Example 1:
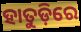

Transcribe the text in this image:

ହାତୁଡ଼ିରେ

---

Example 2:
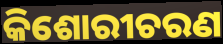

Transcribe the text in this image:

କିଶୋରୀଚରଣ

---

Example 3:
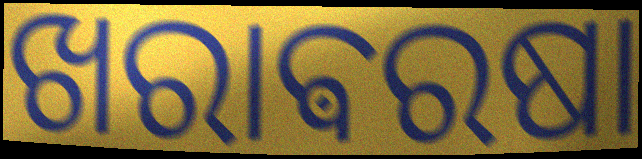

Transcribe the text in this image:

ଖରାଵରଷା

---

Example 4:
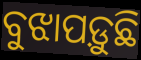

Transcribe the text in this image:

ବୁଝାପଡ଼ୁଛି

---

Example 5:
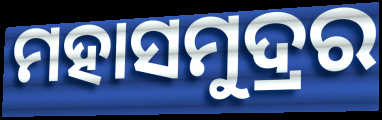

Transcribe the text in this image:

ମହାସମୁଦ୍ରର